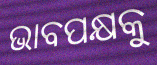
ଭାବପକ୍ଷକୁ